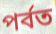
পৰ্বত